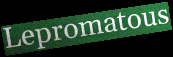
Lepromatous